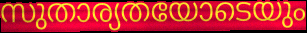
സുതാര്യതയോടെയും